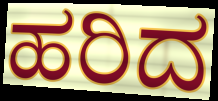
ಹರಿದ